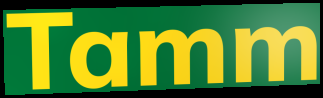
Tamm